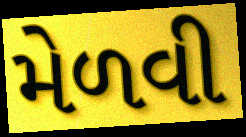
મેળવી